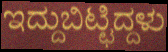
ಇದ್ದುಬಿಟ್ಟಿದ್ದಳು